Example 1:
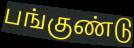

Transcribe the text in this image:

பங்குண்டு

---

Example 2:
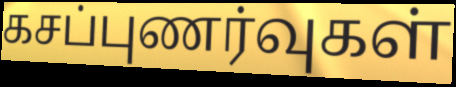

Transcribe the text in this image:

கசப்புணர்வுகள்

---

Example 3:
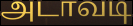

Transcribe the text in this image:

அடாவடி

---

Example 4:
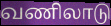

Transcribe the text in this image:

வணிலாடு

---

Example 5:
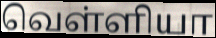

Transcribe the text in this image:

வெள்ளியா